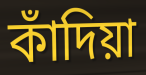
কাঁদিয়া